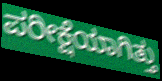
ಪರೀಕ್ಷೆಯಾಗಿತ್ತು